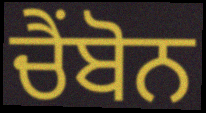
ਚੈਂਬੋਨ